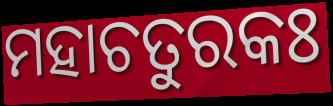
ମହାଚତୁରକଃ